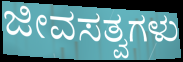
ಜೀವಸತ್ವಗಳು